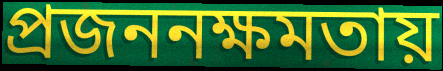
প্রজননক্ষমতায়